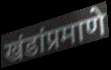
खंडांप्रमाणे